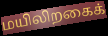
மயிலிறகைக்